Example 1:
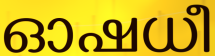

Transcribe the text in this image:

ഓഷധീ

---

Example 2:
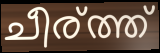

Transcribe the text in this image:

ചീര്ത്ത്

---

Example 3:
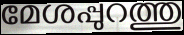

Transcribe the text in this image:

മേശപ്പുറത്തു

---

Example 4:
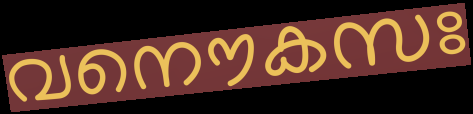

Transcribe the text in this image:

വനൌകസഃ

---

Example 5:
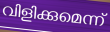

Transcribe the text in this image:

വിളിക്കുമെന്ന്